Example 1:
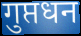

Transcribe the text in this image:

गुप्तधन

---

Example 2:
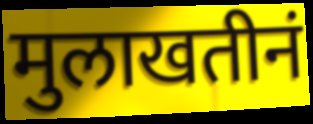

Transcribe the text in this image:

मुलाखतीनं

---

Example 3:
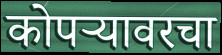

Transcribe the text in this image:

कोपऱ्यावरचा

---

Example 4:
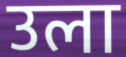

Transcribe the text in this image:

उला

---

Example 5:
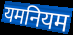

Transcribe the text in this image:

यमनियम